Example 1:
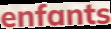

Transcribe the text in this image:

enfants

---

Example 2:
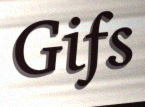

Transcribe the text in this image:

Gifs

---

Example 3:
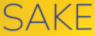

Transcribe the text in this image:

SAKE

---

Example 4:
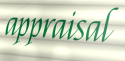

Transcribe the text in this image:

appraisal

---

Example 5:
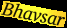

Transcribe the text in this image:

Bhavsar